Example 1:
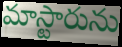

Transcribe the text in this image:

మాస్టారును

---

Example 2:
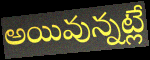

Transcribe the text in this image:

అయివున్నట్లే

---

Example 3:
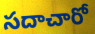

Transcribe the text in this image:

సదాచారో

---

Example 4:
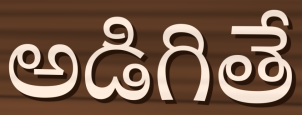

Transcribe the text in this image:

అడిగితే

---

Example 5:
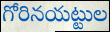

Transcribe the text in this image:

గోరినయట్టుల